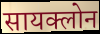
सायक्लोन